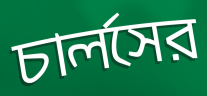
চার্লসের